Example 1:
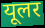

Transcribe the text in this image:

यूलर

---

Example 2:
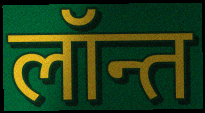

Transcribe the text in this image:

लॉन्त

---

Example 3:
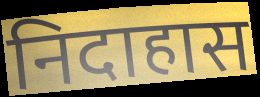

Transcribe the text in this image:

निदाहास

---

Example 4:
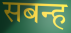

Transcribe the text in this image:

सबन्ह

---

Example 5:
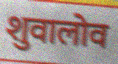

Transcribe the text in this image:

शुवालोव